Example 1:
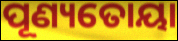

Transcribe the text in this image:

ପୂଣ୍ୟତୋୟା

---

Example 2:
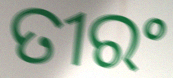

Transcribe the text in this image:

ତୀରଂ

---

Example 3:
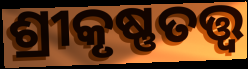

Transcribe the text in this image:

ଶ୍ରୀକୃଷ୍ଣତତ୍ତ୍ଵ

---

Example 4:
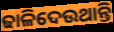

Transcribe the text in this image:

ଢାଳିଦେଉଥାନ୍ତି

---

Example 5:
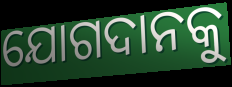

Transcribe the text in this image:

ଯୋଗଦାନକୁ